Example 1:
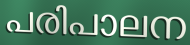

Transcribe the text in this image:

പരിപാലന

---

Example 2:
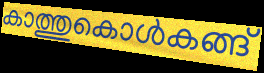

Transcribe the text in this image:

കാത്തുകൊൾകങ്ങ്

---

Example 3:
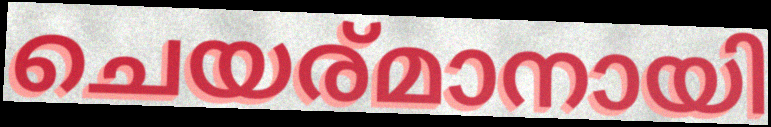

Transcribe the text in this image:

ചെയര്മാനായി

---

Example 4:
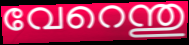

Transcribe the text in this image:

വേറെന്തു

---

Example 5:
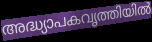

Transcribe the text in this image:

അദ്ധ്യാപകവൃത്തിയിൽ